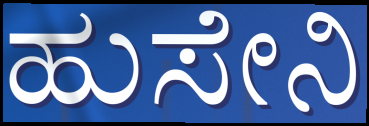
ಹುಸೇನಿ